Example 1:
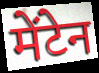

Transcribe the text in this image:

मेंटेन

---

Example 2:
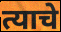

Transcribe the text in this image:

त्याचे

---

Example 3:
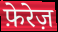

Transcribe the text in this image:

फ़ेरेज़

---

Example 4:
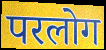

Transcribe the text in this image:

परलोग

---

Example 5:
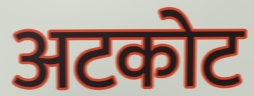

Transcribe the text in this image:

अटकोट